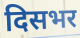
दिसभर